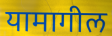
यामागील